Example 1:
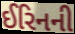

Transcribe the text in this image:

ઈરિનની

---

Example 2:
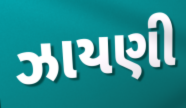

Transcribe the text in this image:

ઝાયણી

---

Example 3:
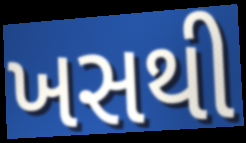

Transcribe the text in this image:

ખસથી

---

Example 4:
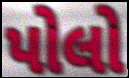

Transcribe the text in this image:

પોલો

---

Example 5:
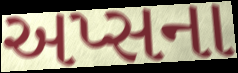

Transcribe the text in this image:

અપ્સના